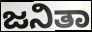
ಜನಿತಾ